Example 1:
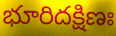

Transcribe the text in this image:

భూరిదక్షిణః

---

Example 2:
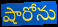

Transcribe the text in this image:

షారోను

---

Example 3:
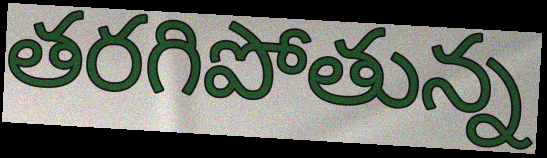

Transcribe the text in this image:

తరగిపోతున్న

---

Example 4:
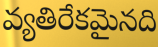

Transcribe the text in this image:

వ్యతిరేకమైనది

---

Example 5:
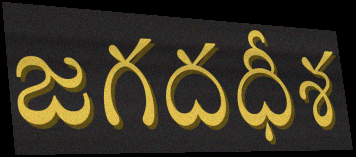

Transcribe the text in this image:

జగదధీశ